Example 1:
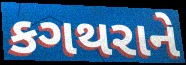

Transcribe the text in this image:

કગથરાને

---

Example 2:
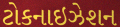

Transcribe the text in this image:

ટોકનાઇઝેશન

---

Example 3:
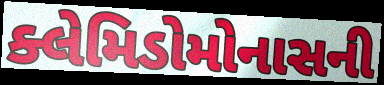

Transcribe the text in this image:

ક્લેમિડોમોનાસની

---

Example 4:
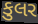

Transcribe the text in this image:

કુલર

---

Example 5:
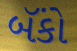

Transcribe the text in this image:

બૅંકો